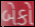
બેકો